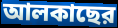
আলকাছের